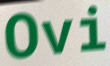
Ovi